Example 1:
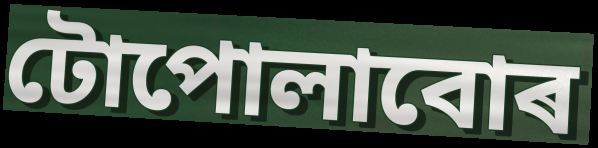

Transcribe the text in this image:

টোপোলাবোৰ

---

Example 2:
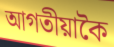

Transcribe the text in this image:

আগতীয়াকৈ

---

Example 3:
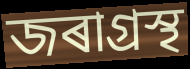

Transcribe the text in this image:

জৰাগ্ৰস্থ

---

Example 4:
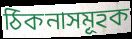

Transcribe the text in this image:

ঠিকনাসমূহক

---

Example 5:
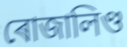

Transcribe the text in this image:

ৰোজালিণ্ড